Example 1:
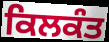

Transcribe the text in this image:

ਕਿਲਕੰਤ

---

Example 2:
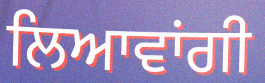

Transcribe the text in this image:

ਲਿਆਵਾਂਗੀ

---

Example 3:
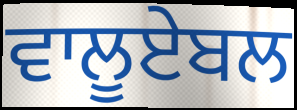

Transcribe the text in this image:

ਵਾਲੂਏਬਲ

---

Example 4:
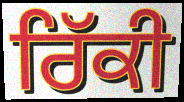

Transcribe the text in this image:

ਰਿੱਕੀ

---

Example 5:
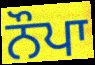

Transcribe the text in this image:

ਨੌਪਾ